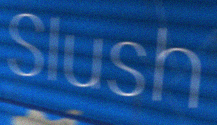
Slush